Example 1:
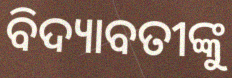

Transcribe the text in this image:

ବିଦ୍ୟାବତୀଙ୍କୁ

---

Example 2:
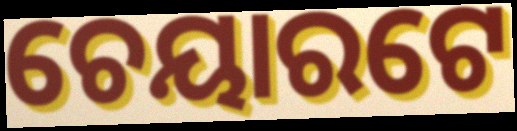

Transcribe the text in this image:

ଚେୟାରଟେ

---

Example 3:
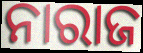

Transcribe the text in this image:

ନାରାଜ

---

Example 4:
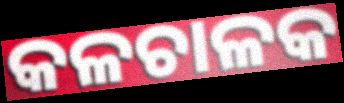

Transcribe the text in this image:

କଳଚାଳକ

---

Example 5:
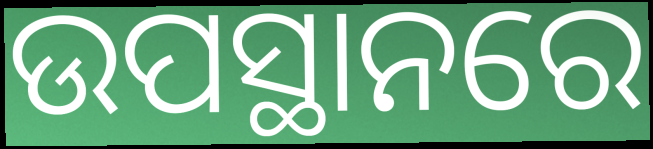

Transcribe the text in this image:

ଉପସ୍ଥାନରେ